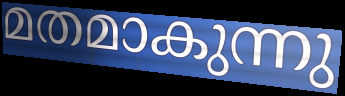
മതമാകുന്നു